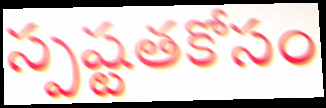
స్పష్టతకోసం